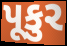
પૂકુર